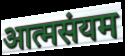
आत्मसंयम